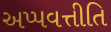
અપ્પવત્તીતિ